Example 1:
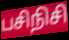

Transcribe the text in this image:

பசிநிசி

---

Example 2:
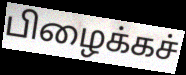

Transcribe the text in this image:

பிழைக்கச்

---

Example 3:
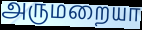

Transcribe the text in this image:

அருமறையா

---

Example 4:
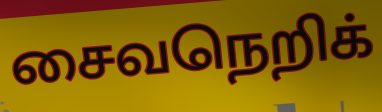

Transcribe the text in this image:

சைவநெறிக்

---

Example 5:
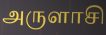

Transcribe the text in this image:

அருளாசி